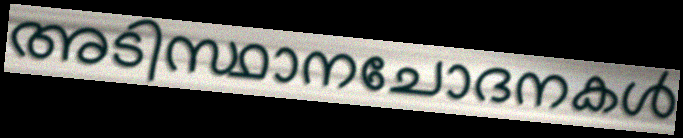
അടിസ്ഥാനചോദനകൾ